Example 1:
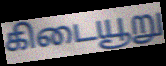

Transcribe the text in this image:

கிடையூறு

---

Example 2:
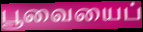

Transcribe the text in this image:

பூவையைப்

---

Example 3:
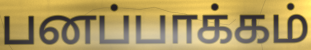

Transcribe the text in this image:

பனப்பாக்கம்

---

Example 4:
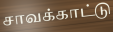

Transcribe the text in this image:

சாவக்காட்டு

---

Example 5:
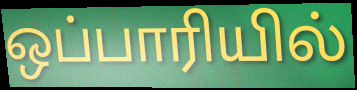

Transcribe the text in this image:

ஒப்பாரியில்